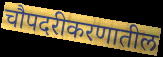
चौपदरीकरणातील